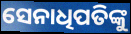
ସେନାଧିପତିଙ୍କୁ